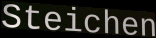
Steichen